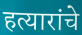
हत्यारांचे